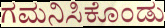
ಗಮನಿಸಿಕೊಂಡು